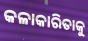
କଳାକାରିତାକୁ